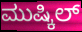
ಮುಷ್ಕಿಲ್